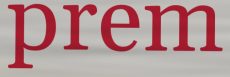
prem